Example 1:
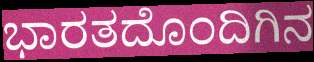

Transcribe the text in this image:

ಭಾರತದೊಂದಿಗಿನ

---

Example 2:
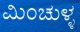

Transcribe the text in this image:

ಮಿಂಚುಳ್ಳ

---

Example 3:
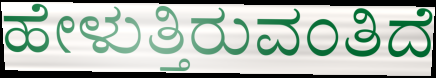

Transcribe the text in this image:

ಹೇಳುತ್ತಿರುವಂತಿದೆ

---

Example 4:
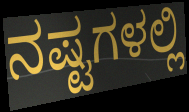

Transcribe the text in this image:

ನಷ್ಟಗಳಲ್ಲಿ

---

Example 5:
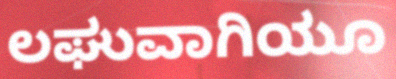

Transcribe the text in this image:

ಲಘುವಾಗಿಯೂ